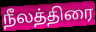
நீலத்திரை